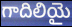
గాదిలియై